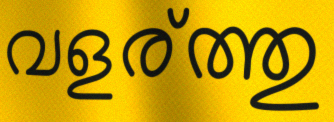
വളര്ത്തു